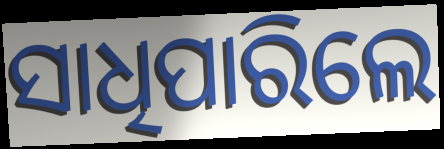
ସାଧିପାରିଲେ